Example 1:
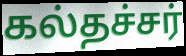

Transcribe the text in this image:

கல்தச்சர்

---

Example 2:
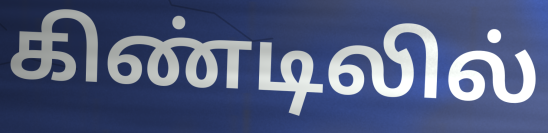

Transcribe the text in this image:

கிண்டிலில்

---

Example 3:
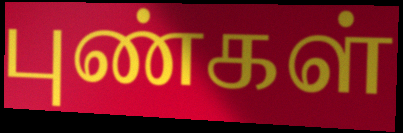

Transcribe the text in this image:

புண்கள்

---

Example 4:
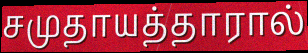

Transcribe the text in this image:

சமுதாயத்தாரால்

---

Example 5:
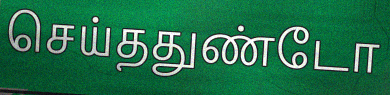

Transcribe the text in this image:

செய்ததுண்டோ